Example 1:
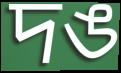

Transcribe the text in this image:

দঙ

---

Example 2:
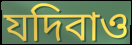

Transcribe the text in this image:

যদিবাও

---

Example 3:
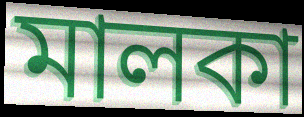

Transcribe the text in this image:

মালকা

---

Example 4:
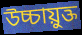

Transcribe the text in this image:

উচ্চায়ুক্ত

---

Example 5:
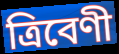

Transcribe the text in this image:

ত্ৰিবেণী